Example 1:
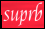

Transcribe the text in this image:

suprb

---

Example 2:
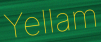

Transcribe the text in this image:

Yellam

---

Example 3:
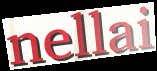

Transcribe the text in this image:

nellai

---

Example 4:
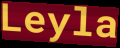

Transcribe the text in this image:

Leyla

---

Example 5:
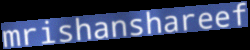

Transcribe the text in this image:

mrishanshareef